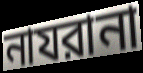
নাযরানা